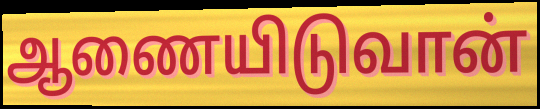
ஆணையிடுவான்